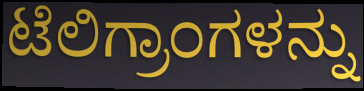
ಟೆಲಿಗ್ರಾಂಗಳನ್ನು